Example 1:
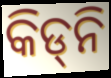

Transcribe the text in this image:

କିଡ୍‌ନି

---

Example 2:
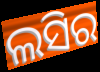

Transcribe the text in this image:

ଲସିର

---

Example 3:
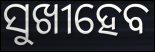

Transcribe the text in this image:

ସୁଖୀହେବ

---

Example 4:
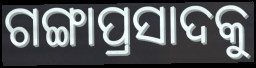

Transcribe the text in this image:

ଗଙ୍ଗାପ୍ରସାଦକୁ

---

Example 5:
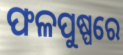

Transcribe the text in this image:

ଫଳପୁଷ୍ପରେ